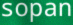
sopan